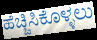
ಹೆಚ್ಚಿಸಿಕೊಳ್ಳಲು